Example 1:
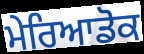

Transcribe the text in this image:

ਮੇਰਿਆਡੋਕ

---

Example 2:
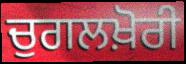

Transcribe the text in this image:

ਚੁਗਲਖ਼ੋਰੀ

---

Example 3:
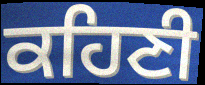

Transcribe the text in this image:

ਕਹਿਣੀ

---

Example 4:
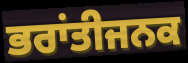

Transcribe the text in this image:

ਭਰਾਂਤੀਜਨਕ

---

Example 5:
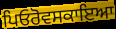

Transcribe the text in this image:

ਪਿਓਰੋਵਸਕਾਇਆ